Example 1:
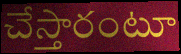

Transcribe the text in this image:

చేస్తారంటూ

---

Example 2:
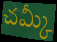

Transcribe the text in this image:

చమ్కీ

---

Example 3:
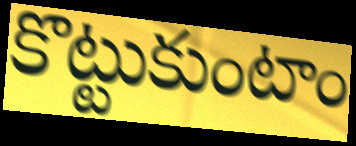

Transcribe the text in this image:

కొట్టుకుంటాం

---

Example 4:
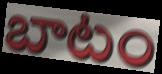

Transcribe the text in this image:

బాటం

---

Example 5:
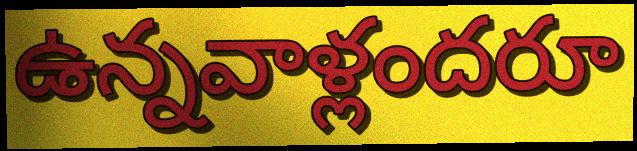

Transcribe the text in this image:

ఉన్నవాళ్లందరూ